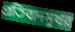
প্রতিবাদমুখর